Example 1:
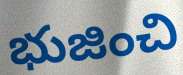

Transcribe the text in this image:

భుజించి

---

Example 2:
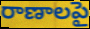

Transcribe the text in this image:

రాణాలపై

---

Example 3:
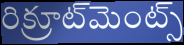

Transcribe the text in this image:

రిక్రూట్‌మెంట్స్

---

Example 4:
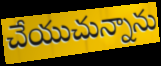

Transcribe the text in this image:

చేయుచున్నాను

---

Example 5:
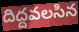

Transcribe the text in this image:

దిద్దవలసిన